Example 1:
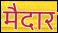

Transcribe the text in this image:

मैदार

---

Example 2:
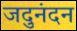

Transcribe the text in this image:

जदुनंदन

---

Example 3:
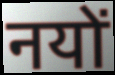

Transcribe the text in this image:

नयों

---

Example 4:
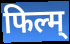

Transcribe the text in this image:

फिल्म्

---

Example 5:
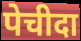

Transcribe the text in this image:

पेचीदा